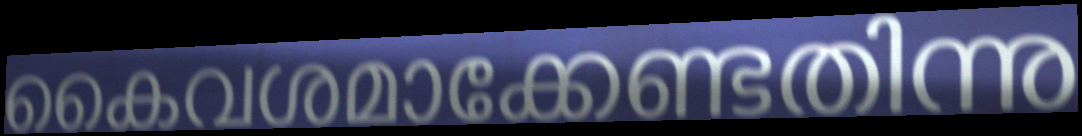
കൈവശമാക്കേണ്ടതിന്നു